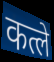
कत्ले